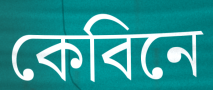
কেবিনে